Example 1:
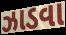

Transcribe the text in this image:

ઝાડવા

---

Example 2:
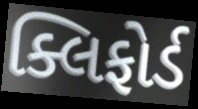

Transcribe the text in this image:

ક્લિફોર્ડ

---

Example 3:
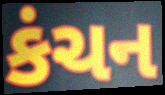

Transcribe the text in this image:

કંચન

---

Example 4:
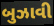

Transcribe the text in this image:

બુઝાવી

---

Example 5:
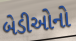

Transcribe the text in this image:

બેડીઓનો